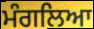
ਮੰਗਲਿਆ